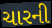
ચારની